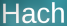
Hach